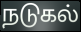
நடுகல்